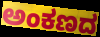
ಅಂಕಣದ